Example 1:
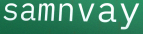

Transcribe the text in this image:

samnvay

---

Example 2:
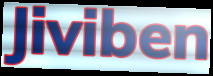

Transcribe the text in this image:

Jiviben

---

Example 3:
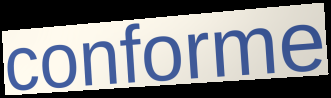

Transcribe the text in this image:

conforme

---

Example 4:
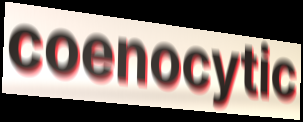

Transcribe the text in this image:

coenocytic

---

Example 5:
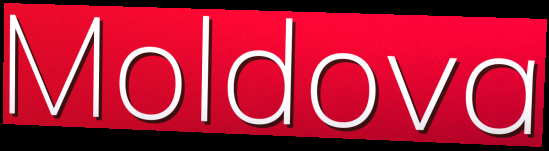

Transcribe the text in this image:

Moldova